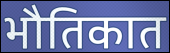
भौतिकात